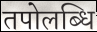
तपोलब्धि